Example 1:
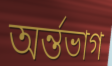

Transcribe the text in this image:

অৰ্ন্তভাগ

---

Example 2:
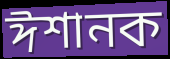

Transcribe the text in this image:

ঈশানক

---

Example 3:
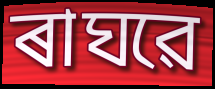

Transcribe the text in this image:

ৰাঘৱে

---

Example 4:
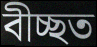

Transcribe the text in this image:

বীচ্ছত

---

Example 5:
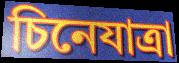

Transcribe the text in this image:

চিনেযাত্ৰা